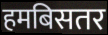
हमबिसतर